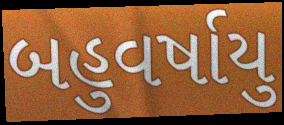
બહુવર્ષાયુ